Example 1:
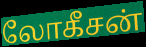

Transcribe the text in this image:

லோகீசன்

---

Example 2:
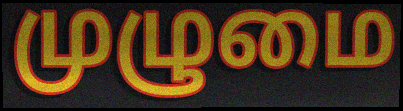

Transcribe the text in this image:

முழுமை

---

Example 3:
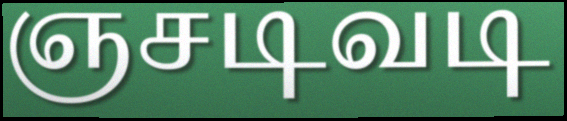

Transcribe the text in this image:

ஞசடிவடி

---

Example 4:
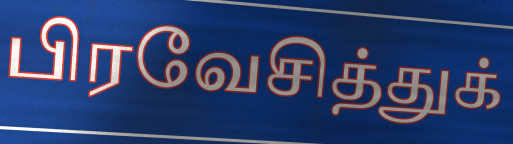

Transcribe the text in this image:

பிரவேசித்துக்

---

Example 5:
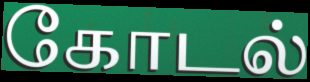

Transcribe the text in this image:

கோடல்